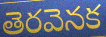
తెరవెనక